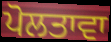
ਪੋਲਤਾਵਾ